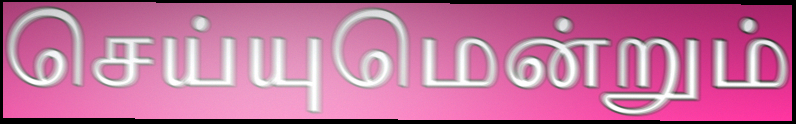
செய்யுமென்றும்